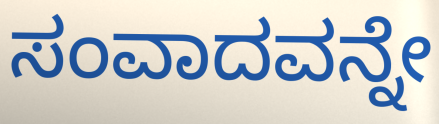
ಸಂವಾದವನ್ನೇ